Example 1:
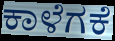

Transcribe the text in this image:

ಕಾಳೆಗಕೆ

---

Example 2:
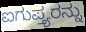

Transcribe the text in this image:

ಐಗುಪ್ತ್ಯರನ್ನು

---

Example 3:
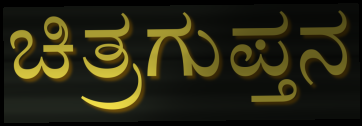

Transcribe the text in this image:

ಚಿತ್ರಗುಪ್ತನ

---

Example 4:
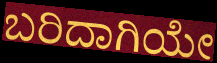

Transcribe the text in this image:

ಬರಿದಾಗಿಯೇ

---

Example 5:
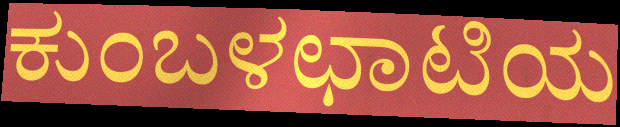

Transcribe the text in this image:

ಕುಂಬಳಛಾಟಿಯ